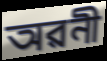
অৱনী